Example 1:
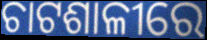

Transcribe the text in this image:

ଚାଟଶାଳୀରେ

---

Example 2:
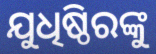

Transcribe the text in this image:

ଯୁଧିଷ୍ଠିରଙ୍କୁ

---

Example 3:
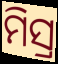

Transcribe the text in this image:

ମିସ୍ର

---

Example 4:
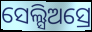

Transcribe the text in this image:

ସେଲ୍ସିଅସ୍ରେ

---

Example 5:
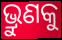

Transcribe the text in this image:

ଭ୍ରୁଣକୁ